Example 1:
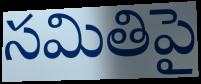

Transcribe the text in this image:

సమితిపై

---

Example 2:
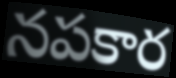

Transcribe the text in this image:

నపకార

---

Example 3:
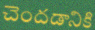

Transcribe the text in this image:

చెందడానికి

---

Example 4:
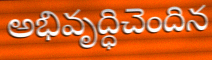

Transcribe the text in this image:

అభివృద్ధిచెందిన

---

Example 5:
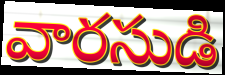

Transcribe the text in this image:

వారసుడి